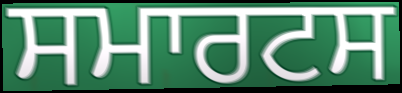
ਸਮਾਰਟਸ